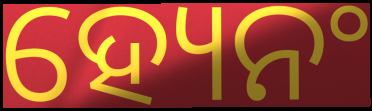
ହ୍ୟେନଂ